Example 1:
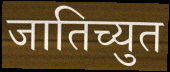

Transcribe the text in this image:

जातिच्युत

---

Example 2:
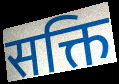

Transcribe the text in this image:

सक्ति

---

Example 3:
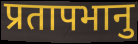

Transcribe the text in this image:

प्रतापभानु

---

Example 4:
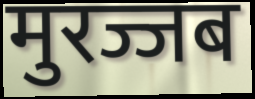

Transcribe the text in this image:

मुरज्जब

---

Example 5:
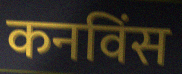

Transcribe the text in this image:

कनविंस